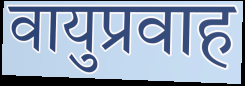
वायुप्रवाह